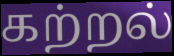
கற்றல்